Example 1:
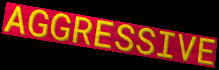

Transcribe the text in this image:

AGGRESSIVE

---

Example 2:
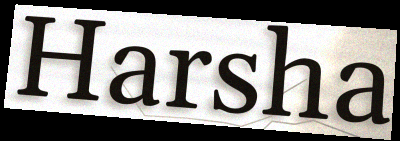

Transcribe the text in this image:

Harsha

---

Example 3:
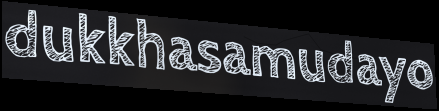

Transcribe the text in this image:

dukkhasamudayo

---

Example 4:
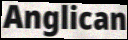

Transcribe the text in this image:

Anglican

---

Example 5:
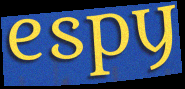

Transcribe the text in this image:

espy